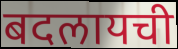
बदलायची